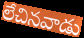
లేచినవాడు